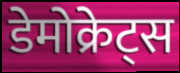
डेमोक्रेट्स